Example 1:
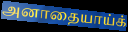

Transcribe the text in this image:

அனாதையாய்க்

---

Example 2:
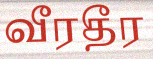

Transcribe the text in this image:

வீரதீர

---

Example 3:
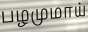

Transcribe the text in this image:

பழமுமாய்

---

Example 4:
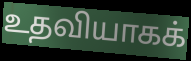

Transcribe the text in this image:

உதவியாகக்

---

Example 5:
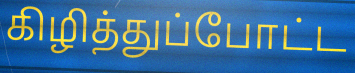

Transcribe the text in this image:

கிழித்துப்போட்ட